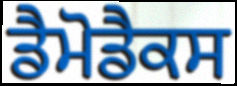
ਡੈਮੋਡੈਕਸ